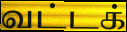
வட்டக்